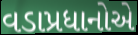
વડાપ્રધાનોએ